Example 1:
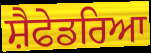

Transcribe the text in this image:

ਸ਼ੈਫੇਡਰਿਆ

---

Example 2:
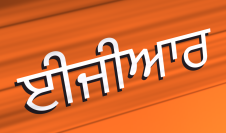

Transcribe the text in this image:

ਈਜੀਆਰ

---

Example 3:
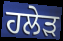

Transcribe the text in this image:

ਹਲੇੜ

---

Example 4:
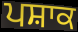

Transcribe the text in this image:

ਪਸ਼ਾਕ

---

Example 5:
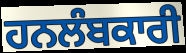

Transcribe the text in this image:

ਹਨਲੰਬਕਾਰੀ